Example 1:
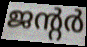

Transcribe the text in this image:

ജന്റർ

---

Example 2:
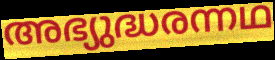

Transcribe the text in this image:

അഭ്യുദ്ധരന്നഥ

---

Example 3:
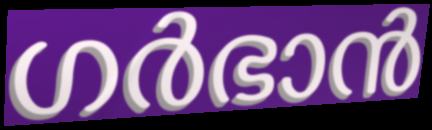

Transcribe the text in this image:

ഗർഭാൻ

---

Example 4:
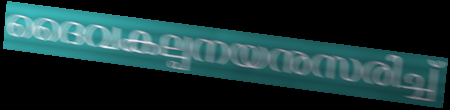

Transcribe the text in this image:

ദൈവകല്പനയനുസരിച്ച്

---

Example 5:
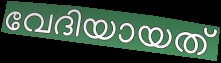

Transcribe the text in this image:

വേദിയായത്